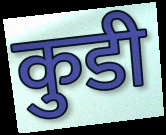
कुडी